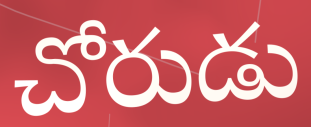
చోరుడు